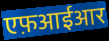
एफ़आईआर